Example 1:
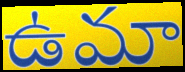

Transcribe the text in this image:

ఉమా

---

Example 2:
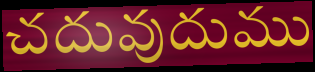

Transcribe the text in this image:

చదువుదుము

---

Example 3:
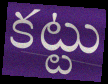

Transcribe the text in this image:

కట్టు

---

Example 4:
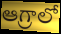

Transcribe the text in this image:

ఆగ్రాలో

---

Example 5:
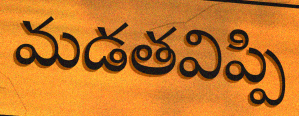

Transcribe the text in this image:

మడతవిప్పి